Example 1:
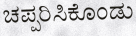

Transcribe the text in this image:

ಚಪ್ಪರಿಸಿಕೊಂಡು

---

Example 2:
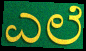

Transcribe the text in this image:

ಎಲೆ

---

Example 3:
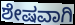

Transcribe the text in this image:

ಶೇಷವಾಗಿ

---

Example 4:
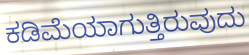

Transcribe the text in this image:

ಕಡಿಮೆಯಾಗುತ್ತಿರುವುದು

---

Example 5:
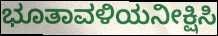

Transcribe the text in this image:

ಭೂತಾವಳಿಯನೀಕ್ಷಿಸಿ